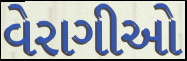
વેરાગીઓ